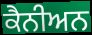
ਕੈਨੀਅਨ